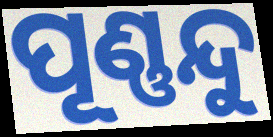
ପୂଣ୍ଣନ୍ଦୁ